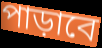
পাড়াবে